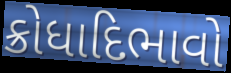
ક્રોધાદિભાવો